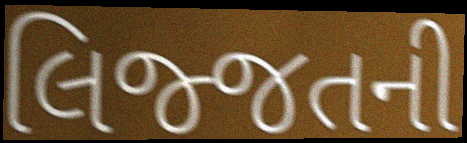
લિજ્જતની